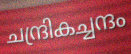
ചന്ദ്രികച്ചന്ദം